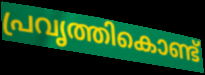
പ്രവൃത്തികൊണ്ട്